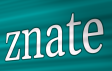
znate